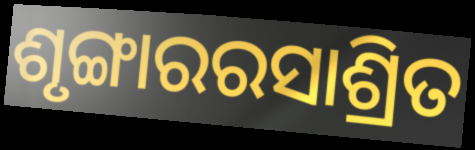
ଶୃଙ୍ଗାରରସାଶ୍ରିତ